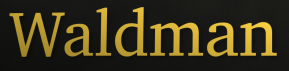
Waldman